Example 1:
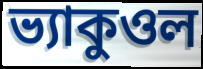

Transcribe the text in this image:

ভ্যাকুওল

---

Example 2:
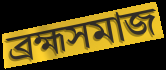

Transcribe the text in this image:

ব্রহ্মসমাজ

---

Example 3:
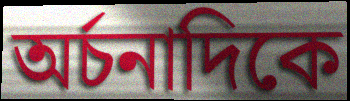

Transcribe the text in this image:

অর্চনাদিকে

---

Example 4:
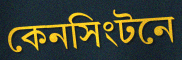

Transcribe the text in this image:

কেনসিংটনে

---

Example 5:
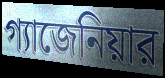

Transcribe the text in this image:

গ্যাজেনিয়ার